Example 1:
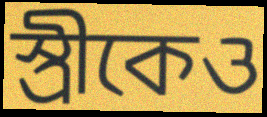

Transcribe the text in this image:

স্ত্রীকেও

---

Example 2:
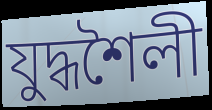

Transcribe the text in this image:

যুদ্ধশৈলী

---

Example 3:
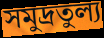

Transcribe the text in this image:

সমুদ্রতুল্য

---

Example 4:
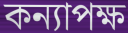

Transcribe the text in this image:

কন্যাপক্ষ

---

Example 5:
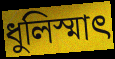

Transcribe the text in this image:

ধুলিস্মাৎ